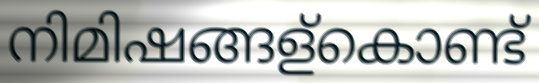
നിമിഷങ്ങള്കൊണ്ട്